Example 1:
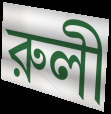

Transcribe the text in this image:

রুলী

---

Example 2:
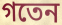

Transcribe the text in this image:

গতেন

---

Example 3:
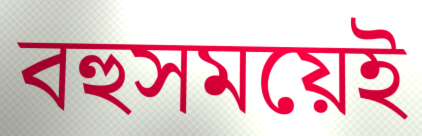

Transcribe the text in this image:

বহুসময়েই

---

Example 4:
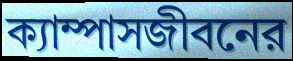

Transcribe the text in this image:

ক্যাম্পাসজীবনের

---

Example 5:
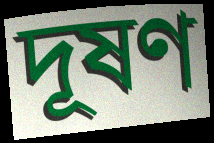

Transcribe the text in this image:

দূষণ